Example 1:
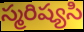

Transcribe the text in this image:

స్మరిష్యసి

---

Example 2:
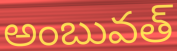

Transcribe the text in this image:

అంబువత్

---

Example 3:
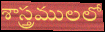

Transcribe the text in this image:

శాస్త్రములలో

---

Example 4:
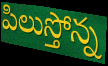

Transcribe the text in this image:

పిలుస్తోన్న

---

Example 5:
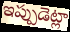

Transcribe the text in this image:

ఇప్పుడెట్లా